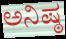
ಅನಿಷ್ಠ